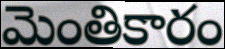
మెంతికారం